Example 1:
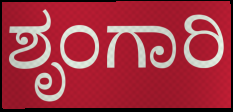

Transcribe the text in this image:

ಶೃಂಗಾರಿ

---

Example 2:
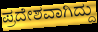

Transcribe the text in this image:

ಪ್ರದೇಶವಾಗಿದ್ದು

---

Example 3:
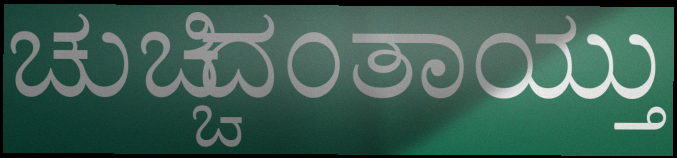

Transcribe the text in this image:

ಚುಚ್ಚಿದಂತಾಯ್ತು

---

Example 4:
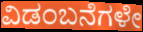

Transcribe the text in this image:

ವಿಡಂಬನೆಗಳೇ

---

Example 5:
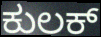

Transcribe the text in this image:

ಕುಲಕ್